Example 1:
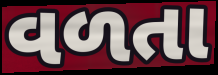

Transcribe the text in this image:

વળતા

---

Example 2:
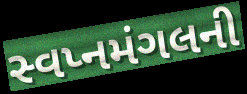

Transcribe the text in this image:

સ્વપ્નમંગલની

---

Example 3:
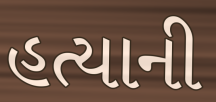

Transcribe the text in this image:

હત્યાની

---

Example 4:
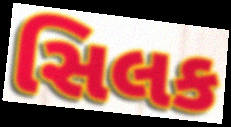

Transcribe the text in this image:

સિલક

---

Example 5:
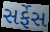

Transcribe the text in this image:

સર્ફેસ